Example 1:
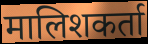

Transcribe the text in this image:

मालिशकर्ता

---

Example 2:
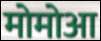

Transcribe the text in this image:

मोमोआ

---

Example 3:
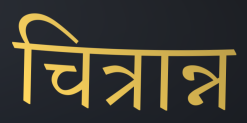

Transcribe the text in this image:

चित्रान्न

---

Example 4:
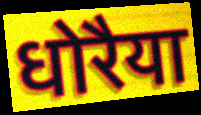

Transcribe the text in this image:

धोरैया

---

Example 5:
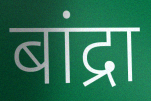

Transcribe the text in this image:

बांद्रा